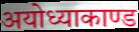
अयोध्याकाण्ड